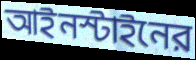
আইনস্টাইনের